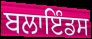
ਬਲਾਇੰਡਸ